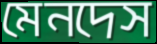
মেনদেস